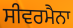
ਸੀਵਰਮੈਨਾ